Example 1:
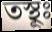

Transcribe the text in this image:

তস্থূঃ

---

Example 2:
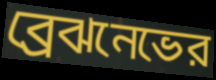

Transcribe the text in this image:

ব্রেঝনেভের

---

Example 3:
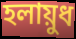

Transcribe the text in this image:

হলায়ুধ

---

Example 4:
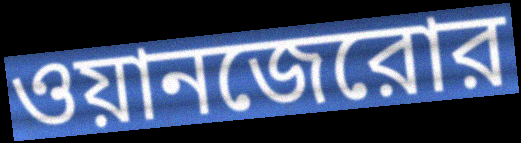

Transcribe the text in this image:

ওয়ানজেরোর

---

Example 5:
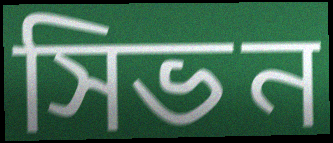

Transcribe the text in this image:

সিভন